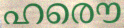
ഹരൌ